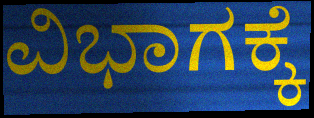
ವಿಭಾಗಕ್ಕೆ